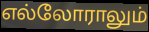
எல்லோராலும்